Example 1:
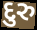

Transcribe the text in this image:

દુરુ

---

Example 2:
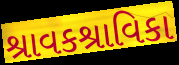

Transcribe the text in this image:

શ્રાવકશ્રાવિકા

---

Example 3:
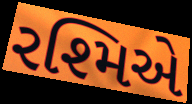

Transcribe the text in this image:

રશ્મિએ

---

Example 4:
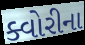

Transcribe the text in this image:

ક્વોરીના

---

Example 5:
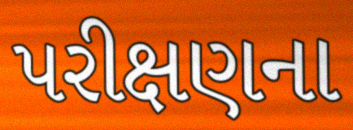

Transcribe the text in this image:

પરીક્ષણના